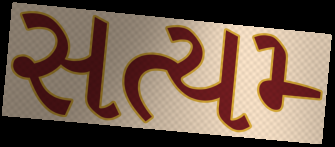
સત્યમ્‍